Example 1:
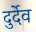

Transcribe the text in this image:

दुर्देव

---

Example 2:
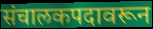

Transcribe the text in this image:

संचालकपदावरून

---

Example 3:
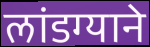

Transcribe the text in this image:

लांडग्याने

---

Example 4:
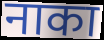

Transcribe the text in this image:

नाका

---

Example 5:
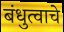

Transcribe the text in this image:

बंधुत्वाचे